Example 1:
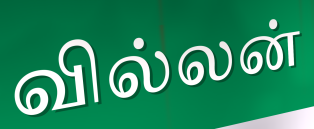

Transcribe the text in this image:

வில்லன்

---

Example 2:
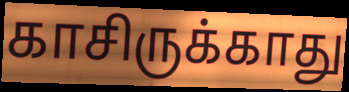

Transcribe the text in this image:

காசிருக்காது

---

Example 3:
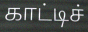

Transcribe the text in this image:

காட்டிச்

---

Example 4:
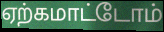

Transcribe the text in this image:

ஏற்கமாட்டோம்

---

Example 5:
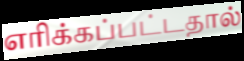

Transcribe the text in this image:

எரிக்கப்பட்டதால்